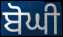
ਬੋਘੀ